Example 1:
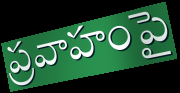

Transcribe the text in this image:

ప్రవాహంపై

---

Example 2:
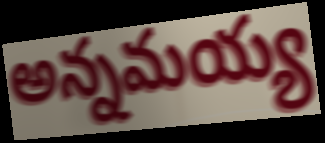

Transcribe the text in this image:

అన్నమయ్య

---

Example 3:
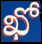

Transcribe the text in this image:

ఖో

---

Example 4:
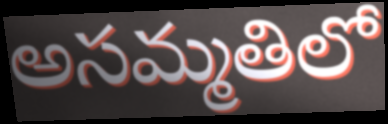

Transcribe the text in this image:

అసమ్మతిలో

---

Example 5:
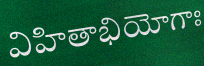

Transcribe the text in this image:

విహితాభియోగాః